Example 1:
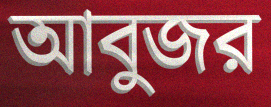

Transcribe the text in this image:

আবুজর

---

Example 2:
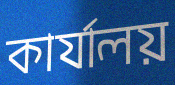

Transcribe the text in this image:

কার্যালয়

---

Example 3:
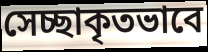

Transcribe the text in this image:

সেচ্ছাকৃতভাবে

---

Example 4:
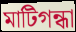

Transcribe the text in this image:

মাটিগন্ধা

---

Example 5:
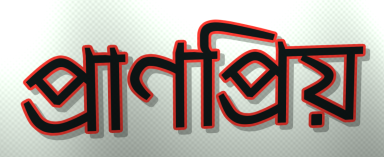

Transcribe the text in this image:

প্রাণপ্রিয়